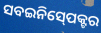
ସବଇନିସ୍‍ପେକ୍ଟର